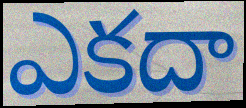
ఎకదా